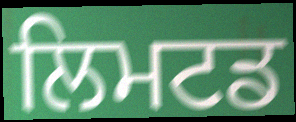
ਲਿਮਟਡ